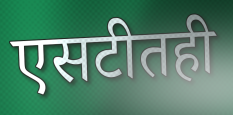
एसटीतही